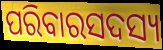
ପରିବାରସଦସ୍ୟ